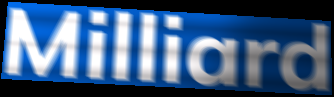
Milliard